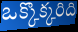
ఒక్కొక్కరిది